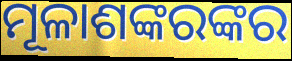
ମୂଳାଶଙ୍କରଙ୍କର